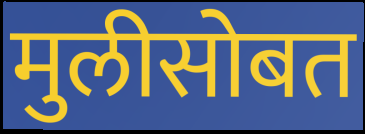
मुलीसोबत